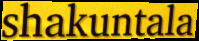
shakuntala